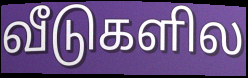
வீடுகளில